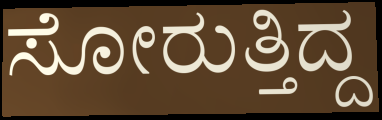
ಸೋರುತ್ತಿದ್ದ